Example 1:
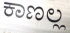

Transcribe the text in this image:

ಕಾಣಲ್ಲ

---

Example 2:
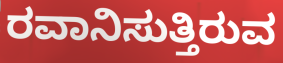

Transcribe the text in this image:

ರವಾನಿಸುತ್ತಿರುವ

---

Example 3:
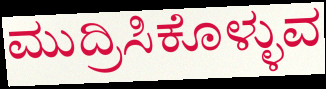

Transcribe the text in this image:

ಮುದ್ರಿಸಿಕೊಳ್ಳುವ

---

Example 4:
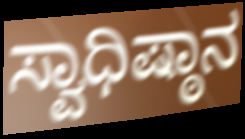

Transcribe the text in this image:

ಸ್ವಾಧಿಷ್ಠಾನ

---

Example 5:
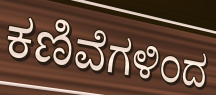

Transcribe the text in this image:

ಕಣಿವೆಗಳಿಂದ